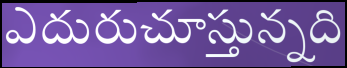
ఎదురుచూస్తున్నది